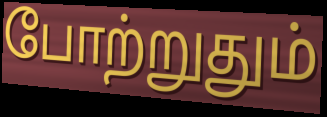
போற்றுதும்